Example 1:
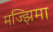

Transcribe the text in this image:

मज्झिमा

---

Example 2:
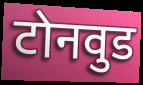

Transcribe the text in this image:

टोनवुड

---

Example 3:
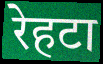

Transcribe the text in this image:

रेहटा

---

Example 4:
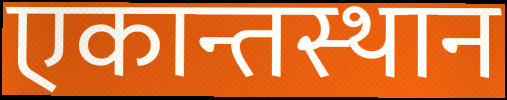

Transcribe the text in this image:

एकान्तस्थान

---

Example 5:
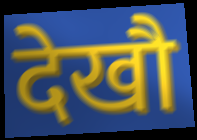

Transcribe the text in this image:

देखौ